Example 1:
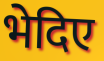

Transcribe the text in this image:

भेदिए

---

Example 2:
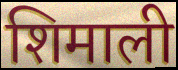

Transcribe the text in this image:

शिमाली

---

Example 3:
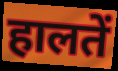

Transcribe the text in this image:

हालतें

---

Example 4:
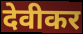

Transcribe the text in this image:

देवीकर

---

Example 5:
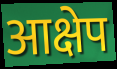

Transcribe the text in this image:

आक्षेप